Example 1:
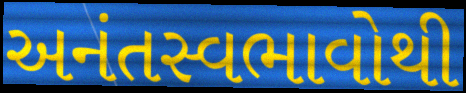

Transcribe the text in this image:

અનંતસ્વભાવોથી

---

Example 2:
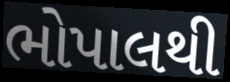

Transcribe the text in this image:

ભોપાલથી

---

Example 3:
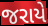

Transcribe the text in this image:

જરાયે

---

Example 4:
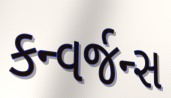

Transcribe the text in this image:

કન્વર્જન્સ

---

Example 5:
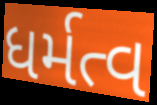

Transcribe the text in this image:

ધર્મત્વ